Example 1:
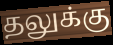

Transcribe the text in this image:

தலுக்கு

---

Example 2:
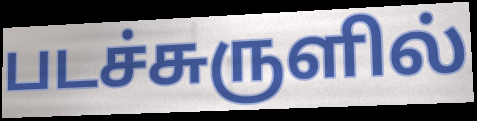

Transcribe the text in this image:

படச்சுருளில்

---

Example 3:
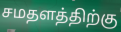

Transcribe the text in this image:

சமதளத்திற்கு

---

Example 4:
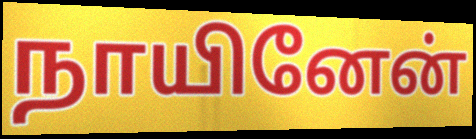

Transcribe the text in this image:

நாயினேன்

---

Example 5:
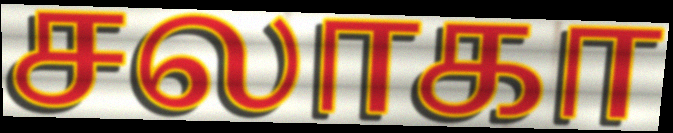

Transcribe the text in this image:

சலாகா